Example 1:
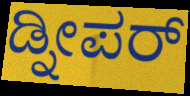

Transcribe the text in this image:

ಡ್ನೀಪರ್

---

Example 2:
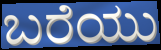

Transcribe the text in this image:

ಬರೆಯು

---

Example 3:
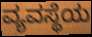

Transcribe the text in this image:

ವ್ಯವಸ್ಥೆಯ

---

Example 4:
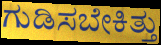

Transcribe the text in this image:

ಗುಡಿಸಬೇಕಿತ್ತು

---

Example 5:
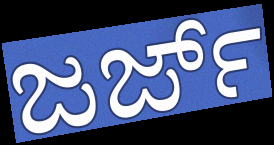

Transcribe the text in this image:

ಜರ್ಜ್